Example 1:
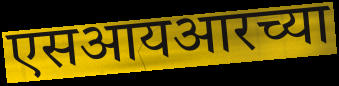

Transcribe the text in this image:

एसआयआरच्या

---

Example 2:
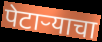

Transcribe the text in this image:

पेटाऱ्याचा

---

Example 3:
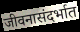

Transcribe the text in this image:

जीवनासंदर्भात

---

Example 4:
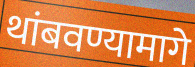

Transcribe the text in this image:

थांबवण्यामागे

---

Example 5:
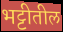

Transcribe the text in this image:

भट्टीतील